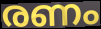
രണം